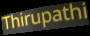
Thirupathi